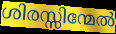
ശിരസ്സിന്മേൽ